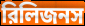
রিলিজনস